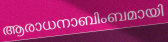
ആരാധനാബിംബമായി